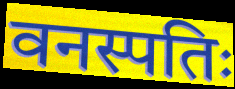
वनस्पतिः